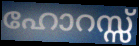
ഹോറസ്സ്